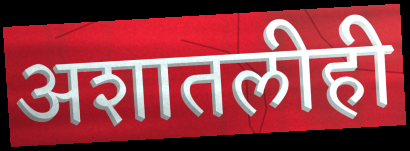
अशातलीही